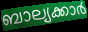
ബാല്യക്കാർ